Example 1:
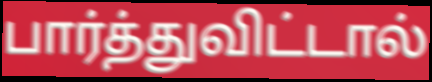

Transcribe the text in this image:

பார்த்துவிட்டால்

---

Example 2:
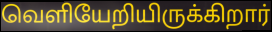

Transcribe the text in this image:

வெளியேறியிருக்கிறார்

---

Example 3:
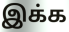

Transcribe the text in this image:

இக்க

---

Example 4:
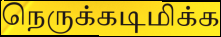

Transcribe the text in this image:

நெருக்கடிமிக்க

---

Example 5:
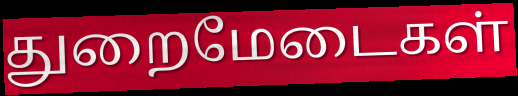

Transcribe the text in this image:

துறைமேடைகள்